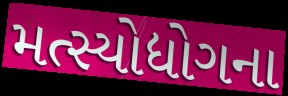
મત્સ્યોદ્યોગના